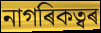
নাগৰিকত্বৰ